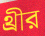
থ্রীর